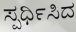
ಸ್ಪರ್ಧಿಸಿದ